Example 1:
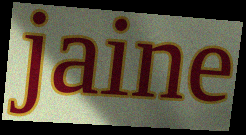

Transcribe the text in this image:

jaine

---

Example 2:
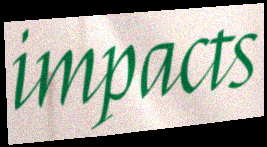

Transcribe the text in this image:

impacts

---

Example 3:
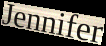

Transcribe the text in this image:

Jennifer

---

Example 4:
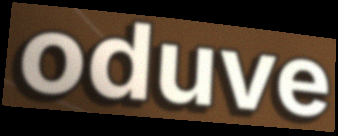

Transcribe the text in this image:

oduve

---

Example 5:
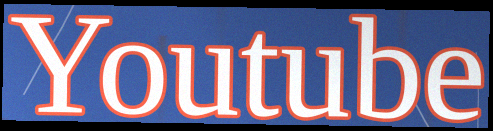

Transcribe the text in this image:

Youtube